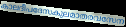
കാലദീപദേസകുലമാതരവസേന